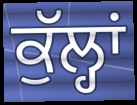
ਕੁੱਲ੍ਹਾਂ